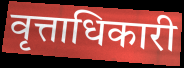
वृत्ताधिकारी